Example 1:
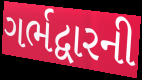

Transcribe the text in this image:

ગર્ભદ્વારની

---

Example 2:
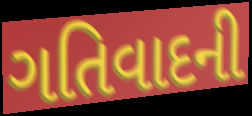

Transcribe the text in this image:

ગતિવાદની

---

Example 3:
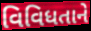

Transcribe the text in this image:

વિવિધતાને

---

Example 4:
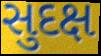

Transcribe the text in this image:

સુદક્ષ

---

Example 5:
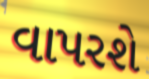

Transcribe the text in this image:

વાપરશે